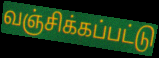
வஞ்சிக்கப்பட்டு